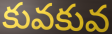
కువకువ